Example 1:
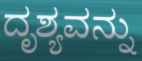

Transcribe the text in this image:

ದೃಶ್ಯವನ್ನು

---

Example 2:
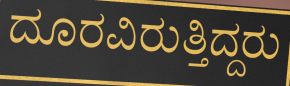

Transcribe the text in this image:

ದೂರವಿರುತ್ತಿದ್ದರು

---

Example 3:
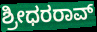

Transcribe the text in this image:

ಶ್ರೀಧರರಾವ್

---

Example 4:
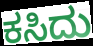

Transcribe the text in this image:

ಕಸಿದು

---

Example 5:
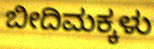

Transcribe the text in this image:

ಬೀದಿಮಕ್ಕಳು